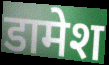
डामेश